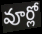
వూర్లో